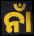
ନାଁ